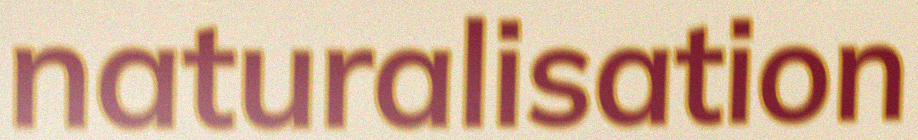
naturalisation